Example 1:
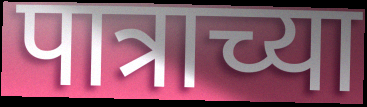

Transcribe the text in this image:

पात्राच्‍या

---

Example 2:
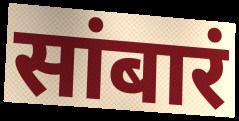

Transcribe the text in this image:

सांबारं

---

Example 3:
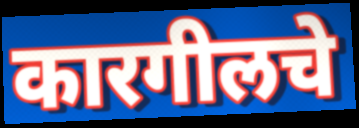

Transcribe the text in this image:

कारगीलचे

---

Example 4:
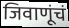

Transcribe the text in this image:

जिवाणूंचं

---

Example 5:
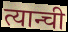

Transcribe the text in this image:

त्यान्ची